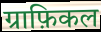
ग्राफ़िकल